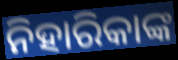
ନିହାରିକାଙ୍କ